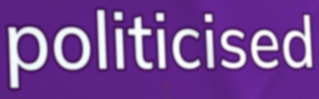
politicised